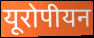
यूरोपीयन